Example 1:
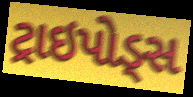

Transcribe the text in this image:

ટ્રાઇપોડ્સ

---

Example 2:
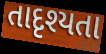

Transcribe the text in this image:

તાદૃશ્યતા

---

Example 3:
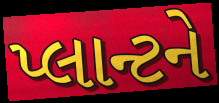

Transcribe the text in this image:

પ્લાન્ટને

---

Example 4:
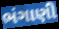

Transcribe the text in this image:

ભંગાણી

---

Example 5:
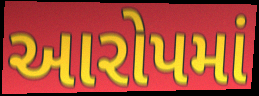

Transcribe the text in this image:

આરોપમાં